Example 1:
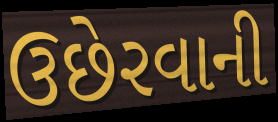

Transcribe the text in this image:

ઉછેરવાની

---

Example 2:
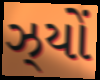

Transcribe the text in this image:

ઝ્યોં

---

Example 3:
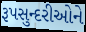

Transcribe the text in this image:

રૂપસુન્દરીઓને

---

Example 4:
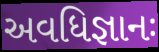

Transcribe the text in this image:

અવધિજ્ઞાનઃ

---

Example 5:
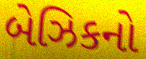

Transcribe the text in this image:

બેઝિકનો